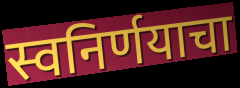
स्वनिर्णयाचा